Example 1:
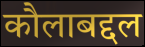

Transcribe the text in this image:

कौलाबद्दल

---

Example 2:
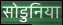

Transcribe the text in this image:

सोडुनिया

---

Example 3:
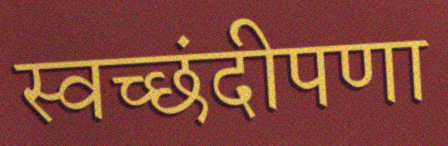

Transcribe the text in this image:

स्वच्छंदीपणा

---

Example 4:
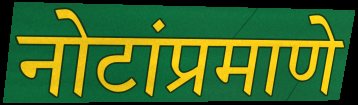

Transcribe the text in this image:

नोटांप्रमाणे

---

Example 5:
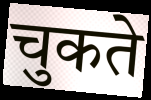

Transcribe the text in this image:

चुकते